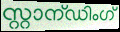
സ്റ്റാന്ഡിംഗ്